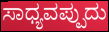
ಸಾಧ್ಯವಪ್ಪುದು